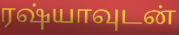
ரஷ்யாவுடன்